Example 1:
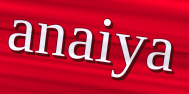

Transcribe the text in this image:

anaiya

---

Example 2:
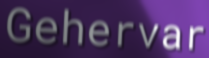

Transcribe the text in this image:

Gehervar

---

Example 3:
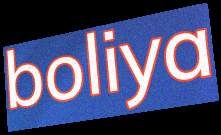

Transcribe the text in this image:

boliya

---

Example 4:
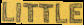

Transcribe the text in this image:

LITTLE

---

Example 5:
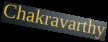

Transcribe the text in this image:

Chakravarthy